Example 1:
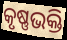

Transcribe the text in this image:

କୃଷ୍ଣଭକ୍ତି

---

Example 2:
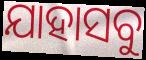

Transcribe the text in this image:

ଯାହାସବୁ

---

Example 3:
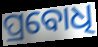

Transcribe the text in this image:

ପ୍ରବୋଧି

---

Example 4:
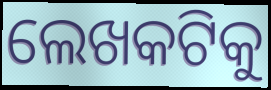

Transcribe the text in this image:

ଲେଖକଟିକୁ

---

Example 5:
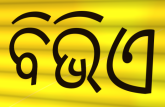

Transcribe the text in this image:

ବିଭିଏ